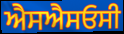
ਐਸਐਸਓਸੀ